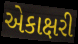
એકાક્ષરી